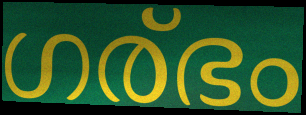
ഗര്ഭം